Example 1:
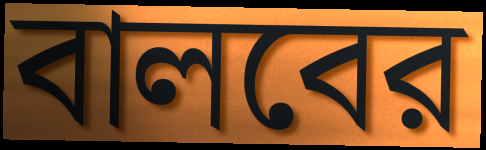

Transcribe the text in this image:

বালবের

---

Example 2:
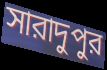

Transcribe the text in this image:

সারাদুপুর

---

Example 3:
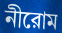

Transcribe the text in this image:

নীরোম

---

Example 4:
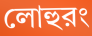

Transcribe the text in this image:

লোহুরং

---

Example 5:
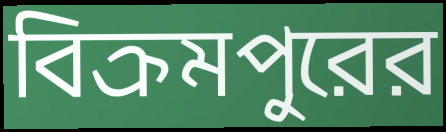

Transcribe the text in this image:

বিক্রমপুরের